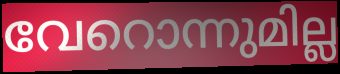
വേറൊന്നുമില്ല